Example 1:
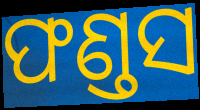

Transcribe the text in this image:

ଫଣ୍ଡସ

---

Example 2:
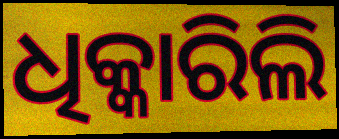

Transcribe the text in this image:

ଧିକ୍କାରିଲି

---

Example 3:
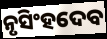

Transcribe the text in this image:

ନୃସିଂହଦେବ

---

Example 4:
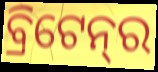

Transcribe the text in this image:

ବ୍ରିଟେନ୍‌ର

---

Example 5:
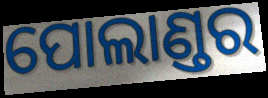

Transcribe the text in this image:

ପୋଲାଣ୍ଡର